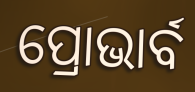
ପ୍ରୋଭାର୍ବ